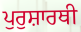
ਪੁਰੁਸ਼ਾਰਥੀ